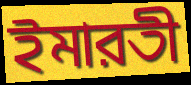
ইমারতী